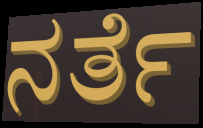
ನರ್ತೆ